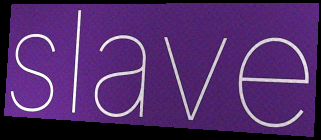
slave